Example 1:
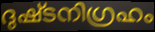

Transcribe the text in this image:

ദുഷ്‌ടനിഗ്രഹം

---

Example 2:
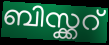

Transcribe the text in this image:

ബിസ്ക്കറ്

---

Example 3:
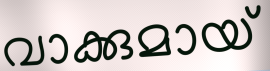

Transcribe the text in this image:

വാക്കുമായ്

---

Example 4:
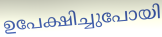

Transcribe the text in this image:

ഉപേക്ഷിച്ചുപോയി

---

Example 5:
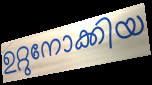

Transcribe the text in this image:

ഉറ്റുനോക്കിയ